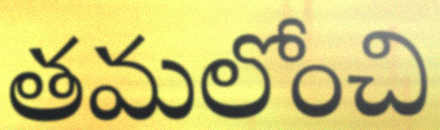
తమలోంచి